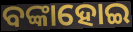
ବଙ୍କାହୋଇ